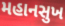
મહાનસુખ